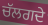
ਚੱਲਗਦੇ